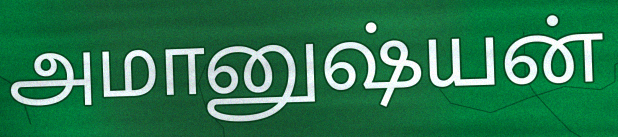
அமானுஷ்யன்